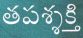
తపశ్శక్తి